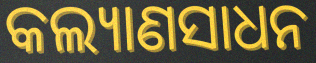
କଲ୍ୟାଣସାଧନ